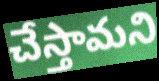
చేస్తామని